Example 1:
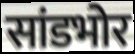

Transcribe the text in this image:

सांडभोर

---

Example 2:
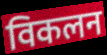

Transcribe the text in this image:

विकलन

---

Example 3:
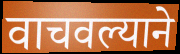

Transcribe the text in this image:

वाचवल्याने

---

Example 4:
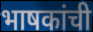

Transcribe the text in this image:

भाषकांची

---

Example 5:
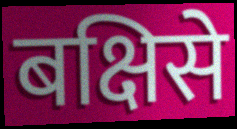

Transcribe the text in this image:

बक्षिसे